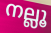
നല്ലൂ